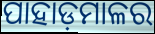
ପାହାଡ଼ମାଳର